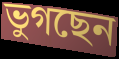
ভুগছেন